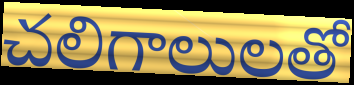
చలిగాలులతో